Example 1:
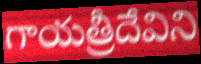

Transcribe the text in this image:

గాయత్రీదేవిని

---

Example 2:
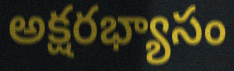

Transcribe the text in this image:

అక్షరభ్యాసం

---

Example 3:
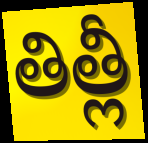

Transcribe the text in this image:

తిత్లీ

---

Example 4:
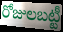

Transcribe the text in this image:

రోజులబట్టీ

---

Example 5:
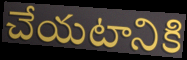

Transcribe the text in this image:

చేయటానికి